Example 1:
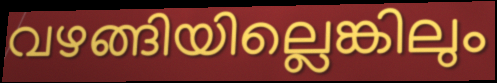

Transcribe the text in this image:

വഴങ്ങിയില്ലെങ്കിലും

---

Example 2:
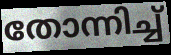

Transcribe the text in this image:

തോന്നിച്ച്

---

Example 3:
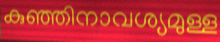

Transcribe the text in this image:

കുഞ്ഞിനാവശ്യമുള്ള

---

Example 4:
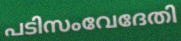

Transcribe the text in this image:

പടിസംവേദേതി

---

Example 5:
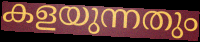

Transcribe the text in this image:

കളയുന്നതും